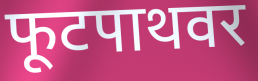
फूटपाथवर